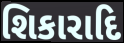
શિકારાદિ